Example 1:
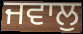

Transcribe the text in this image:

ਜਵਾਲੁ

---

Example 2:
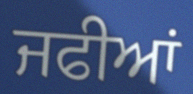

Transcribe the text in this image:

ਜਫੀਆਂ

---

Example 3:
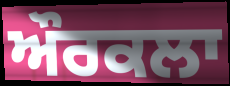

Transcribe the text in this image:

ਔਰਕਲਾ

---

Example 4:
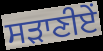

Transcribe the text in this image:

ਸੜਾਣੀਏਂ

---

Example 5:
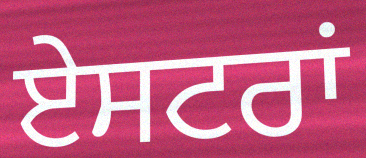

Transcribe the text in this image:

ਏਸਟਰਾਂ